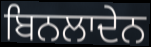
ਬਿਨਲਾਦੇਨ